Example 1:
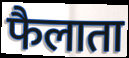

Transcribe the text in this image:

फैलाता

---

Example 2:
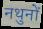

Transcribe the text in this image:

नथुनों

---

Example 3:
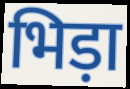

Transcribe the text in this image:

भिड़ा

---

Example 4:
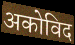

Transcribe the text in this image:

अकोविद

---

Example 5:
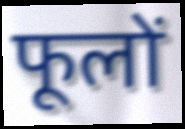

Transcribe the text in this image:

फूलों